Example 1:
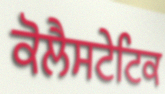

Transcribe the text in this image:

ਕੋਲੈਸਟੇਟਿਕ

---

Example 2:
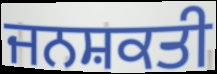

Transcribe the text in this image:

ਜਨਸ਼ਕਤੀ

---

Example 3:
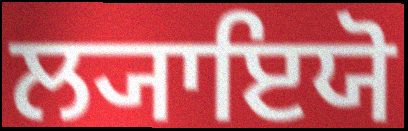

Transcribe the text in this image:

ਲ੍ਯਾਇਯੋ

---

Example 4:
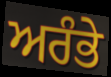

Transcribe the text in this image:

ਅਰੰਭੇ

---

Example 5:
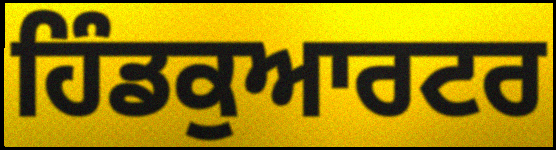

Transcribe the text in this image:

ਹਿੰਡਕੁਆਰਟਰ